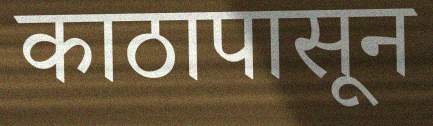
काठापासून